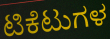
ಟಿಕೆಟುಗಳ